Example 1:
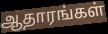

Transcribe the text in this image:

ஆதாரங்கள்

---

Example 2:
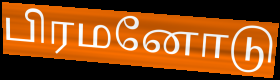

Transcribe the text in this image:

பிரமனோடு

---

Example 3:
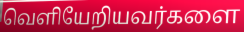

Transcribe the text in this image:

வெளியேறியவர்களை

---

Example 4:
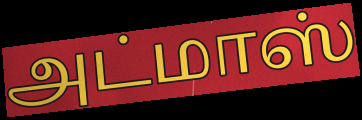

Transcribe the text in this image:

அட்மாஸ்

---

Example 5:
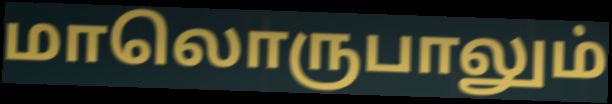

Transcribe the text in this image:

மாலொருபாலும்